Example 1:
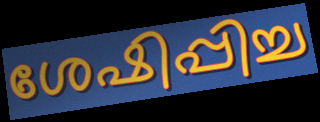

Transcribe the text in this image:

ശേഷിപ്പിച്ച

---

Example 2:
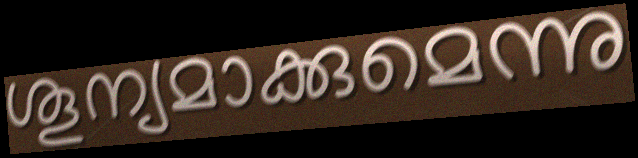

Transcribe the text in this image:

ശൂന്യമാക്കുമെന്നു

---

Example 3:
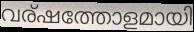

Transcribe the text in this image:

വര്ഷത്തോളമായി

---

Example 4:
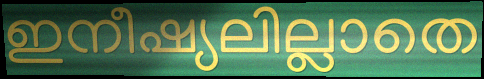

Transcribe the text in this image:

ഇനീഷ്യലില്ലാതെ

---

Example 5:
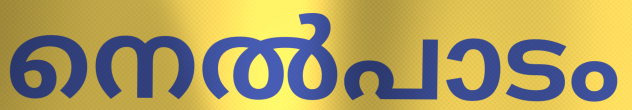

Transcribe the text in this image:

നെൽപാടം